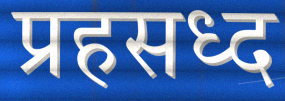
प्रहसध्द